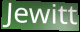
Jewitt